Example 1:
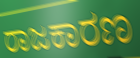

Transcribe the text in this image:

ರಾಜಕಾರಣ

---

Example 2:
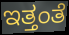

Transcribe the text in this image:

ಇತ್ತಂತೆ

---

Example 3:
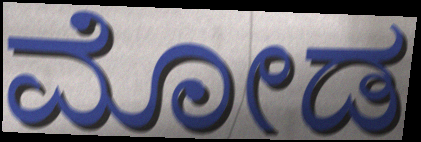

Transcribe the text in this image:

ಮೋಡ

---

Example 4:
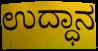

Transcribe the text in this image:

ಉದ್ಧಾನ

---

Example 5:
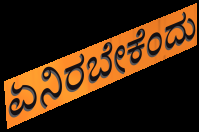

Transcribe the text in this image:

ಏನಿರಬೇಕೆಂದು